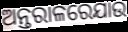
ଅନ୍ତରାଳରେଯାଉ